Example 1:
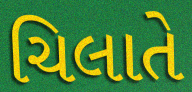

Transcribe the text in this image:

ચિલાતે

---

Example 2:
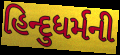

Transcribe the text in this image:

હિન્દુધર્મની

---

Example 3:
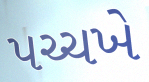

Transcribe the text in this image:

પચ્ચખે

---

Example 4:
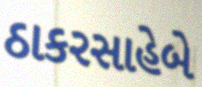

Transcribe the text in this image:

ઠાકરસાહેબે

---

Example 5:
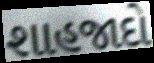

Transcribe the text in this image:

શાહજાદો